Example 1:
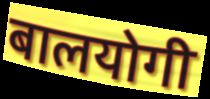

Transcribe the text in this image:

बालयोगी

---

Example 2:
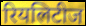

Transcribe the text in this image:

रियलिटीज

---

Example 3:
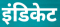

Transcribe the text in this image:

इंडिकेट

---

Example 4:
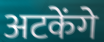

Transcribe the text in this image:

अटकेंगे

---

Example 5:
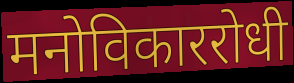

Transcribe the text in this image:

मनोविकाररोधी